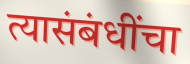
त्यासंबंधींचा